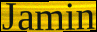
Jamin